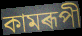
কামৰূপী